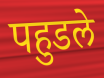
पहुडले